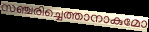
സഞ്ചരിച്ചെത്താനാകുമോ